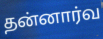
தன்னார்வ